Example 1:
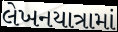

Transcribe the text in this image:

લેખનયાત્રામાં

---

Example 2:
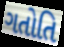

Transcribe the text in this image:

ગતોતિ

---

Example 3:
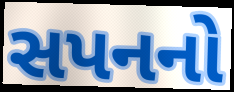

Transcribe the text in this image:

સપનનો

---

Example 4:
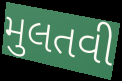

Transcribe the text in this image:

મુલતવી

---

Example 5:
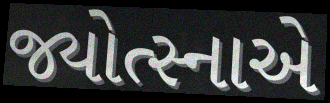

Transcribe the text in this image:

જ્યોત્સ્નાએ